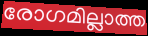
രോഗമില്ലാത്ത